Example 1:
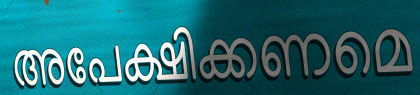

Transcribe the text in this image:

അപേക്ഷിക്കണമെ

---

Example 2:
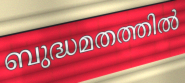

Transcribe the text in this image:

ബുദ്ധമതത്തിൽ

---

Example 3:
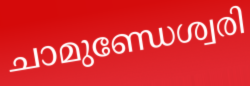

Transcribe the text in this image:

ചാമുണ്ഡേശ്വരി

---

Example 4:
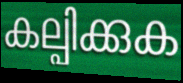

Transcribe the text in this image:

കല്പിക്കുക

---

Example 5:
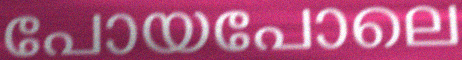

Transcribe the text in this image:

പോയപോലെ